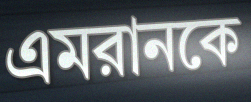
এমরানকে